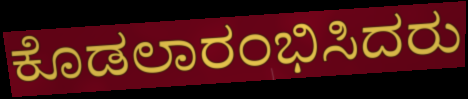
ಕೊಡಲಾರಂಭಿಸಿದರು